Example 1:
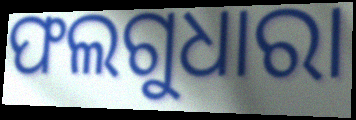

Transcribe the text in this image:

ଫଲଗୁଧାରା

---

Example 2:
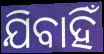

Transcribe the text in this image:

ଯିବାହିଁ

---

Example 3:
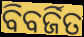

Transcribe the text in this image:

ବିବର୍ଜିତ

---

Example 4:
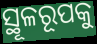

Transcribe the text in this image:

ସ୍ଥୂଳରୂପକୁ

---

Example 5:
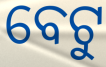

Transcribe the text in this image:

ବେଟୁ